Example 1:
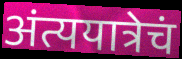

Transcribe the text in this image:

अंत्ययात्रेचं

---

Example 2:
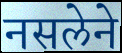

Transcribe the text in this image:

नसलेने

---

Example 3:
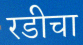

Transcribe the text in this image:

रडीचा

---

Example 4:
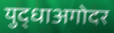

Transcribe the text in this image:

युद्धाअगोदर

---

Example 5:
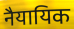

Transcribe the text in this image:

नैयायिक